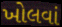
ખોલવાં